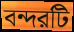
বন্দরটি